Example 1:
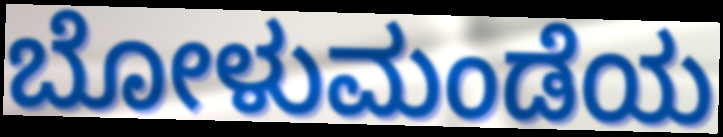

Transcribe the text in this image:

ಬೋಳುಮಂಡೆಯ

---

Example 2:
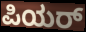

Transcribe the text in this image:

ಪಿಯರ್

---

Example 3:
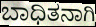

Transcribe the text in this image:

ಬಾಧಿತನಾಗಿ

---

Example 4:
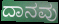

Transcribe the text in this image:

ದಾನವು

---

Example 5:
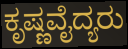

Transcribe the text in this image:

ಕೃಷ್ಣವೈದ್ಯರು